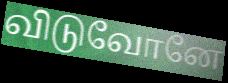
விடுவோனே